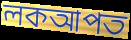
লকআপত